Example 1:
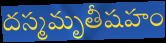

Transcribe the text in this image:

దస్మమృతీషహం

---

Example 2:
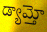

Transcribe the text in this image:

డ్యామ్తో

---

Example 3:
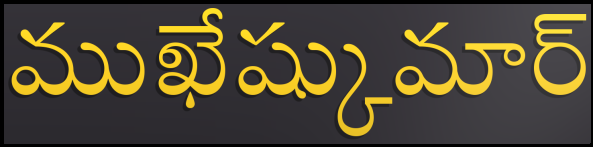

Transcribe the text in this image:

ముఖేష్కుమార్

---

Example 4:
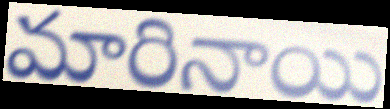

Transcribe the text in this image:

మారినాయి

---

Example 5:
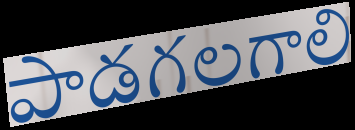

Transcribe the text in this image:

పాడగలగాలి